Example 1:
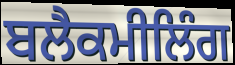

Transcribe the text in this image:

ਬਲੈਕਮੀਲਿੰਗ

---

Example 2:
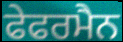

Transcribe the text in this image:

ਫੇਫਰਮੈਨ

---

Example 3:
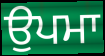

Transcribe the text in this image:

ਉਪਮਾ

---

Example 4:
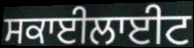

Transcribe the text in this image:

ਸਕਾਈਲਾਈਟ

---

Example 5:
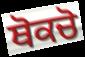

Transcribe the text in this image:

ਥੋਕਚੋ